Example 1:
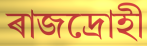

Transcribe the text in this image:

ৰাজদ্ৰোহী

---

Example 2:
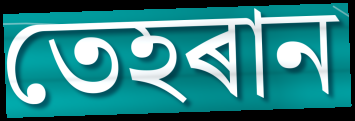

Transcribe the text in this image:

তেহৰান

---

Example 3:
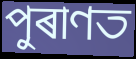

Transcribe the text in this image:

পুৰাণত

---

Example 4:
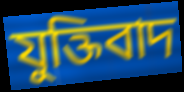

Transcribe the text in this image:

যুক্তিবাদ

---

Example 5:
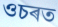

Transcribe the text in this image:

ওচৰত